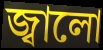
জ্বালো